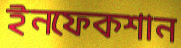
ইনফেকশান